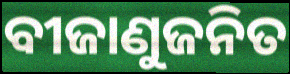
ବୀଜାଣୁଜନିତ